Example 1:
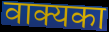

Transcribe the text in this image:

वाक्यका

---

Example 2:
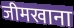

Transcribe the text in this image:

जीमखाना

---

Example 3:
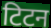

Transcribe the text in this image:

टिटन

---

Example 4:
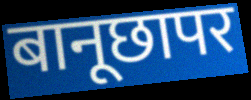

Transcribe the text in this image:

बानूछापर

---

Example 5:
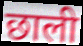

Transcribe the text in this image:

छाली